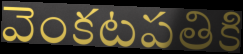
వెంకటపతికి